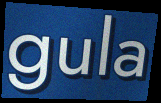
gula